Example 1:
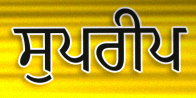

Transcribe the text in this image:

ਸੁਪਰੀਪ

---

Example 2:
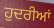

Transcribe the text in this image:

ਹੁਦਰੀਆਂ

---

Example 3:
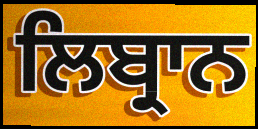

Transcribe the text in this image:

ਲਿਬ੍ਰਾਨ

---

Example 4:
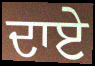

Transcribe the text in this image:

ਦਾਏ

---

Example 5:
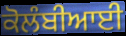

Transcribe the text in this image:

ਕੋਲੰਬੀਆਈ